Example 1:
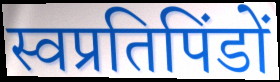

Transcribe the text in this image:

स्वप्रतिपिंडों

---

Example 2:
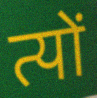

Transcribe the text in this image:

त्यों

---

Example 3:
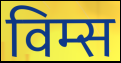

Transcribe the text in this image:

विम्स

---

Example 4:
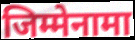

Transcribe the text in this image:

जिम्मेनामा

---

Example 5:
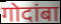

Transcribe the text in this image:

गोदांबा